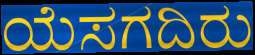
ಯೆಸಗದಿರು